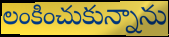
లంకించుకున్నాను